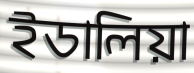
ইডালিয়া